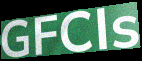
GFCIs